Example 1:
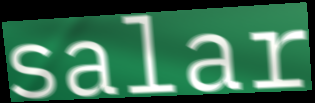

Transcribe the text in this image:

salar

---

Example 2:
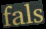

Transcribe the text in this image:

fals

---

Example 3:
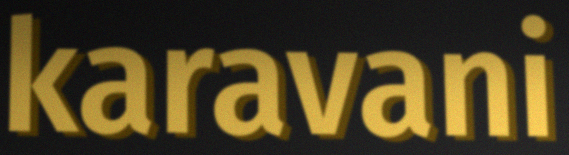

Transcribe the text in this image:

karavani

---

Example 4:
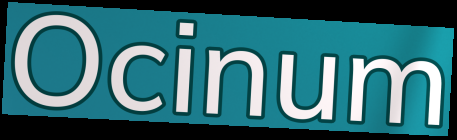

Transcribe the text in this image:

Ocinum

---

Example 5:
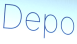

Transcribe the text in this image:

Depo